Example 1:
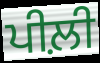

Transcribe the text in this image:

ਪੀਲ਼ੀ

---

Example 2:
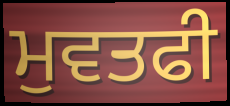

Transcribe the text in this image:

ਮੁਵਤਫੀ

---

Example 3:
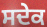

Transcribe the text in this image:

ਸਦੇਕ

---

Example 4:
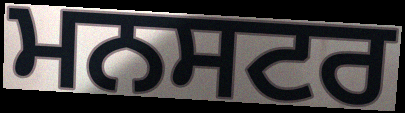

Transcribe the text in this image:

ਮਨਸਟਰ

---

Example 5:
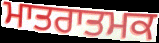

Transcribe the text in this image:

ਮਾਤਰਾਤਮਕ